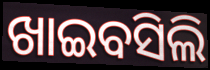
ଖାଇବସିଲି